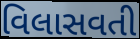
વિલાસવતી